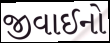
જીવાઈનો